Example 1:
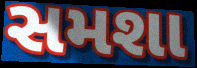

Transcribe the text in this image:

સમશા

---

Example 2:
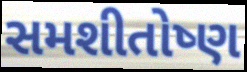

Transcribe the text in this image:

સમશીતોષ્ણ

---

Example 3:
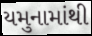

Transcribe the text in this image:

યમુનામાંથી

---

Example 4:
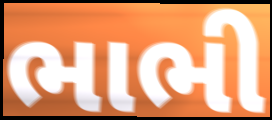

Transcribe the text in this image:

ભાભી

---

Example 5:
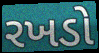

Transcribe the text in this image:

રખડો